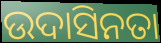
ଉଦାସିନତା